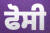
ਫੋਸੀ